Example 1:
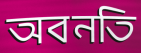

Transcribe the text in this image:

অবনতি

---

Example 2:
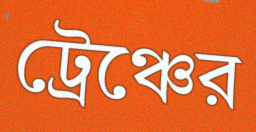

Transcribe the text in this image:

ট্রেঞ্চের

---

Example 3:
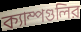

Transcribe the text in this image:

ক্যাম্পগুলির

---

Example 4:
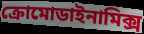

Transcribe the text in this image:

ক্রোমোডাইনামিক্স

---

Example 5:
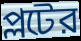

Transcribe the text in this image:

প্লটের